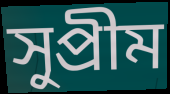
সুপ্ৰীম